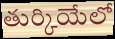
తుర్కియేలో